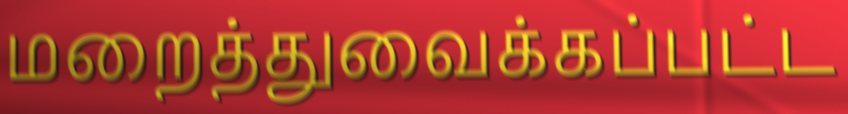
மறைத்துவைக்கப்பட்ட